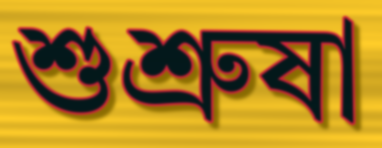
শুশ্ৰুষা